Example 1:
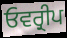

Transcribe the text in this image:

ਓਵਰ੍ਰੀਪ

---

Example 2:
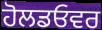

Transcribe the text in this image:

ਹੋਲਡਓਵਰ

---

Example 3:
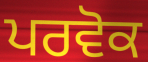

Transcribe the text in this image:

ਪਰਵੋਕ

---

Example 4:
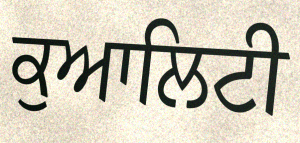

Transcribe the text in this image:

ਕੁਆਲਿਟੀ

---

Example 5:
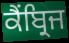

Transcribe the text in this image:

ਕੈਂਬ੍ਰਿਜ